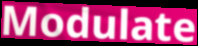
Modulate